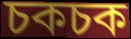
চকচক